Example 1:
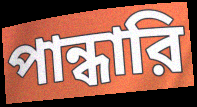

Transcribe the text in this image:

পান্ধারি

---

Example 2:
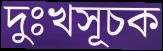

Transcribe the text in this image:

দুঃখসূচক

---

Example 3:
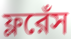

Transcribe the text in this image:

ফ্লরেঁস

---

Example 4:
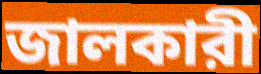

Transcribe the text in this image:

জালকারী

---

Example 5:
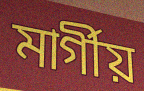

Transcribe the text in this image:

মার্গীয়